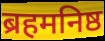
ब्रहमनिष्ठ